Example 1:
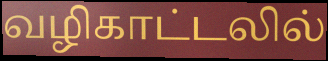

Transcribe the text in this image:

வழிகாட்டலில்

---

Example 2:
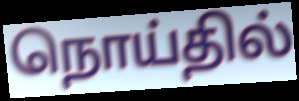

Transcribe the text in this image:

நொய்தில்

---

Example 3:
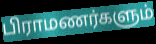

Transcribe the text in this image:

பிராமணர்களும்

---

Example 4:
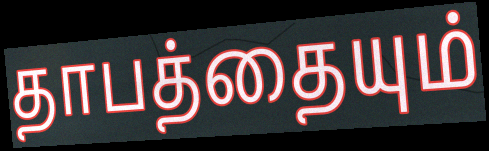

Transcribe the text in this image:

தாபத்தையும்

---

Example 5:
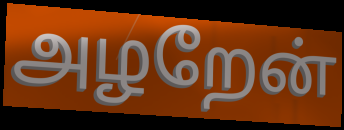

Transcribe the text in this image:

அழறேன்